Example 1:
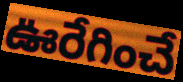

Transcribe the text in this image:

ఊరేగించే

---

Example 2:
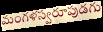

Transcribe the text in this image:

మంగళస్వరూపుడగు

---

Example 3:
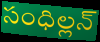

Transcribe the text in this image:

సంధిల్లన్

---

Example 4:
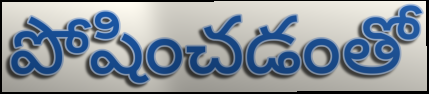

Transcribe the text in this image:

పోషించడంతో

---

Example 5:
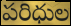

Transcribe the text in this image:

పరిధుల